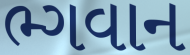
ભ્ગવાન